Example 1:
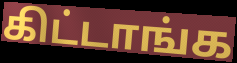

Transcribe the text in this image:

கிட்டாங்க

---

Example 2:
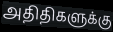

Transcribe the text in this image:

அதிதிகளுக்கு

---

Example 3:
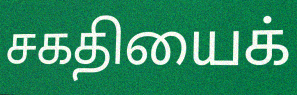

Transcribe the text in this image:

சகதியைக்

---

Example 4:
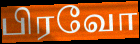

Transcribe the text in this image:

பிரவோ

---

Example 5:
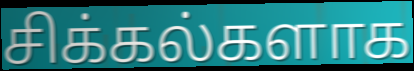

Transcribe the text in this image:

சிக்கல்களாக